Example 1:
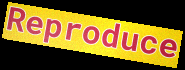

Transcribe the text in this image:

Reproduce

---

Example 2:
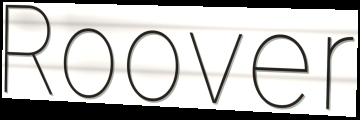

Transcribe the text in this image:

Roover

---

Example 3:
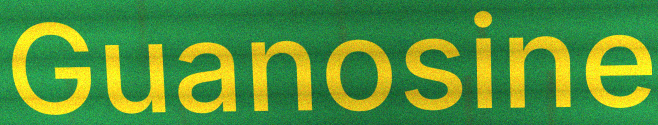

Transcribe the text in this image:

Guanosine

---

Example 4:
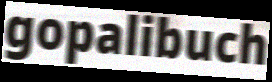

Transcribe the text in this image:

gopalibuch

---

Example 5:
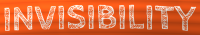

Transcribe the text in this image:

INVISIBILITY